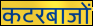
कटरबाजों